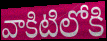
వాకిటిలోకి